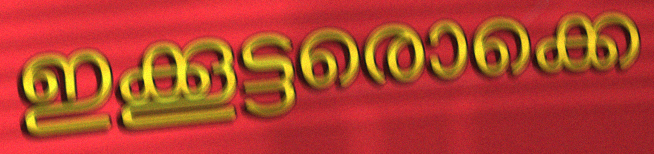
ഇക്കൂട്ടരൊക്കെ